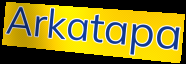
Arkatapa